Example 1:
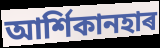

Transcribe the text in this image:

আৰ্শিকানহাৰ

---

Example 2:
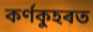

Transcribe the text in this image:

কৰ্ণকুহৰত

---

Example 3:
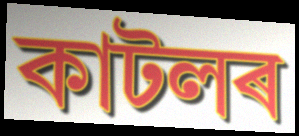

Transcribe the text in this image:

কাটলৰ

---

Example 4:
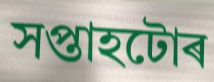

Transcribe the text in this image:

সপ্তাহটোৰ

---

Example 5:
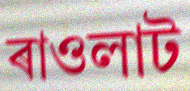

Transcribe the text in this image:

ৰাওলাট